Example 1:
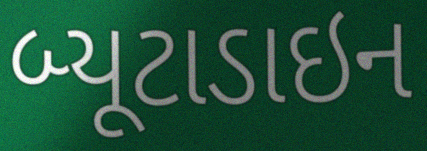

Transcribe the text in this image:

બ્યૂટાડાઇન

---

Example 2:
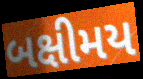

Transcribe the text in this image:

બક્ષીમય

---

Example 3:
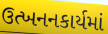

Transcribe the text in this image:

ઉત્ખનનકાર્યમાં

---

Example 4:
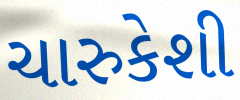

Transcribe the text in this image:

ચારુકેશી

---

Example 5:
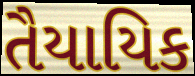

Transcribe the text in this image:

તૈયાયિક